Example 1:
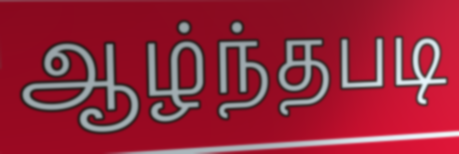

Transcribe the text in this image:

ஆழ்ந்தபடி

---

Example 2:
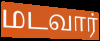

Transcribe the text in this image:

மடவார்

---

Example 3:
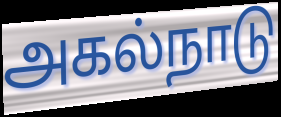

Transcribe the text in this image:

அகல்நாடு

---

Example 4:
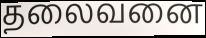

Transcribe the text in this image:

தலைவனை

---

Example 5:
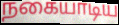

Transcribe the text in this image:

நகையாடிய